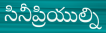
సినీప్రియుల్ని